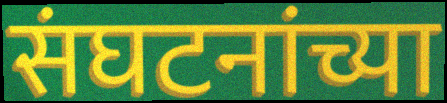
संघटनांच्या